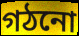
গঠনো